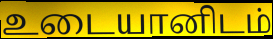
உடையானிடம்